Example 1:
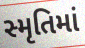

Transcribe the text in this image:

સ્મૃતિમાં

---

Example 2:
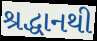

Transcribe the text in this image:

શ્રદ્ધાનથી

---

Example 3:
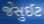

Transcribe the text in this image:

જેસુઈટ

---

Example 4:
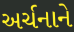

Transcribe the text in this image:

અર્ચનાને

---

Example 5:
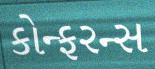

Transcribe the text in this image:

કોન્ફરન્સ